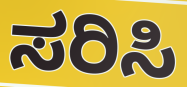
ಸರಿಸಿ